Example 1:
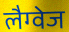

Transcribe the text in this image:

लैग्वेज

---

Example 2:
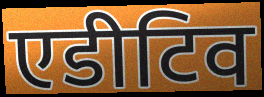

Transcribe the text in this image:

एडीटिव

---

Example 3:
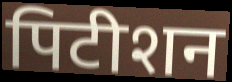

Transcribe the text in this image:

पिटीशन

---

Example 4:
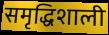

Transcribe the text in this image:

समृद्धिशाली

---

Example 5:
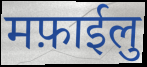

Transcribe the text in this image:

मफ़ाईलु